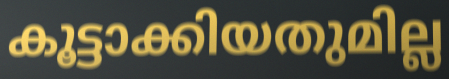
കൂട്ടാക്കിയതുമില്ല